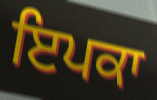
ਇਪਕਾ